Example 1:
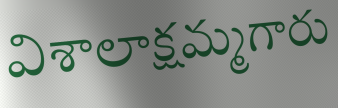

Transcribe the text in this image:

విశాలాక్షమ్మగారు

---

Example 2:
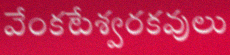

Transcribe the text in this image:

వేంకటేశ్వరకవులు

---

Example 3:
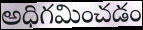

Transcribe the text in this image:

అధిగమించడం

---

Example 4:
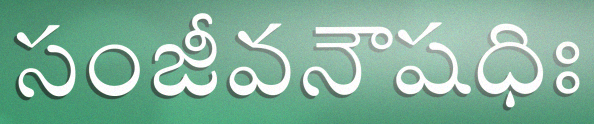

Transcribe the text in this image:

సంజీవనౌషధిః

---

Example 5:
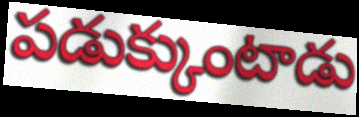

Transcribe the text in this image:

పడుక్కుంటాడు